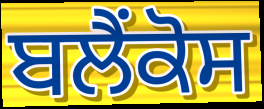
ਬਲੈਂਕੋਸ